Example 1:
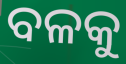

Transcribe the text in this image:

ବଳକୁ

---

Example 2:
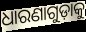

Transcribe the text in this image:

ଧାରଣାଗୁଡ଼ାକୁ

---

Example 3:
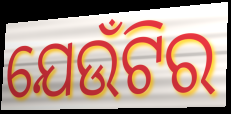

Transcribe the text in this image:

ଯେଉଁଟିର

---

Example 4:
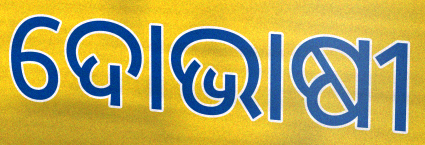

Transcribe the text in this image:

ଦୋଭାଷୀ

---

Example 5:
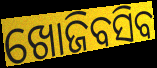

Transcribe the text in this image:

ଖୋଜିବସିବ